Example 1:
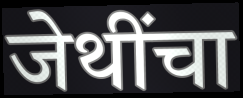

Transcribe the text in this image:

जेथींचा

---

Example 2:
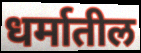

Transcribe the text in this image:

धर्मातील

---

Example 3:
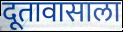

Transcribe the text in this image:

दूतावासाला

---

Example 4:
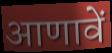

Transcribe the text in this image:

आणावें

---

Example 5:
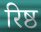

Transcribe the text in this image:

रिष्ठ